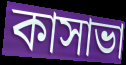
কাসাভা